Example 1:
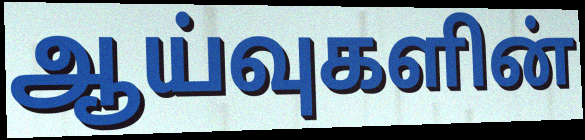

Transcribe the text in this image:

ஆய்வுகளின்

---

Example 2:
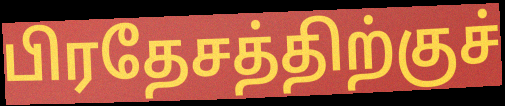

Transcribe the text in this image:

பிரதேசத்திற்குச்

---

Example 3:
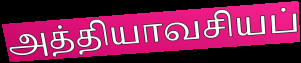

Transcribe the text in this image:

அத்தியாவசியப்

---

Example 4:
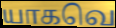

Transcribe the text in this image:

யாகவெ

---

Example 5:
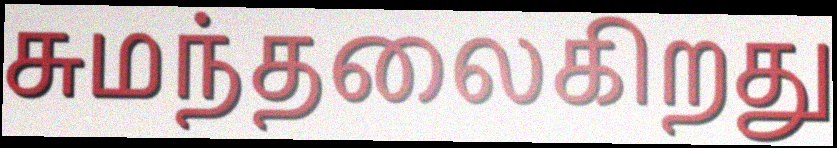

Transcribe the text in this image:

சுமந்தலைகிறது